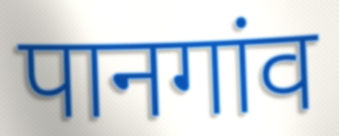
पानगांव